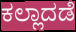
ಕಲ್ಲಾದಡೆ